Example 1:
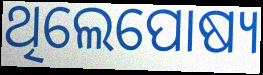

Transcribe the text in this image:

ଥିଲେପୋଷ୍ୟ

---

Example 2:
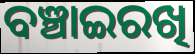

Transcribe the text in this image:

ବଞ୍ଚାଇରଖି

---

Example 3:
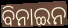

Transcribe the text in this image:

ବିନାଇନ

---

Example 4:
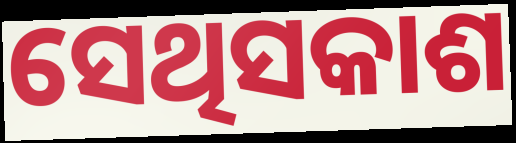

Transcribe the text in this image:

ସେଥିସକାଶ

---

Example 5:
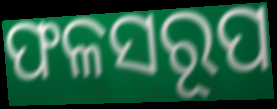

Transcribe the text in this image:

ଫଳସରୂପ